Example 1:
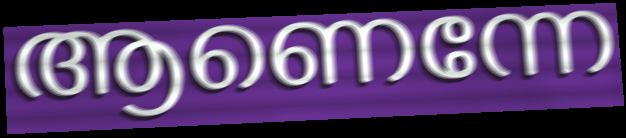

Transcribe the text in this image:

ആണെന്നേ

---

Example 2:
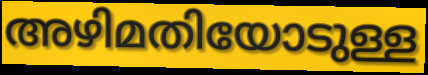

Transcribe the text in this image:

അഴിമതിയോടുള്ള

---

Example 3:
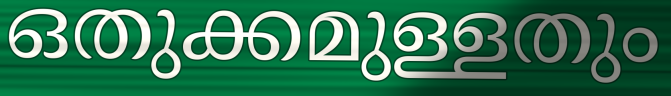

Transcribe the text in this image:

ഒതുക്കമുള്ളതും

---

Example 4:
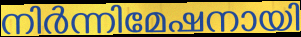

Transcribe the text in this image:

നിർന്നിമേഷനായി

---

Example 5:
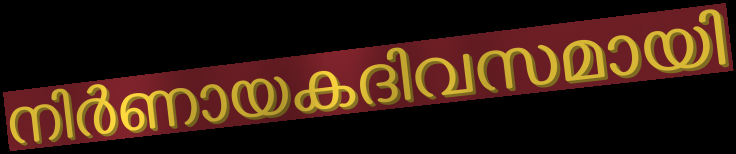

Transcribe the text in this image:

നിർണായകദിവസമായി